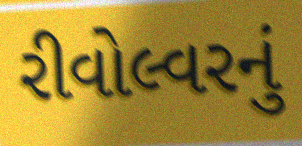
રીવોલ્વરનું